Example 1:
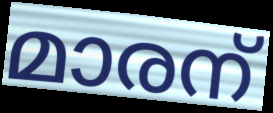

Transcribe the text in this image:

മാരന്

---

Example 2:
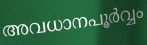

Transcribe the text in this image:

അവധാനപൂർവ്വം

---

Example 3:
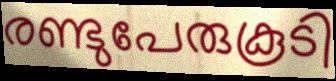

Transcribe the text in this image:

രണ്ടുപേരുകൂടി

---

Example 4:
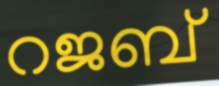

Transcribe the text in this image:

റജബ്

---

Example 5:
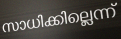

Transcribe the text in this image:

സാധിക്കില്ലെന്ന്